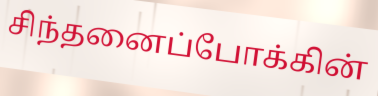
சிந்தனைப்போக்கின்